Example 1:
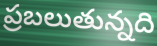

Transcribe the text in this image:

ప్రబలుతున్నది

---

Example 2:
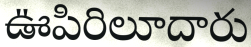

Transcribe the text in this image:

ఊపిరిలూదారు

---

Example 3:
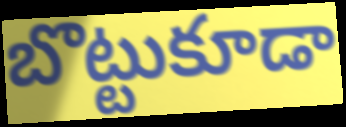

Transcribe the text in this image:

బొట్టుకూడా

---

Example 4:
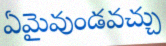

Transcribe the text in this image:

ఏమైవుండవచ్చు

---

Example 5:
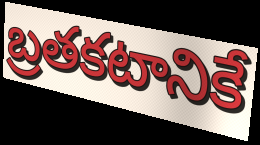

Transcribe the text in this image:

బ్రతకటానికే